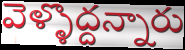
వెళ్ళొద్దన్నారు